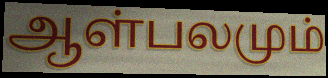
ஆள்பலமும்